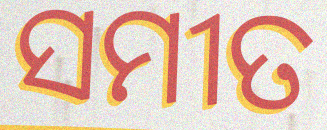
ସମୀତ